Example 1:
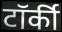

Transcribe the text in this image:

टॉर्की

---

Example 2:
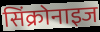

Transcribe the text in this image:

सिंक्रोनाइज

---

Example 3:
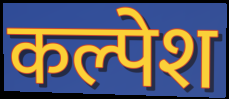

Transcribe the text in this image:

कल्पेश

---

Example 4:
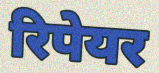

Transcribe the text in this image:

रिपेयर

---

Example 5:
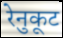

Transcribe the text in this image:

रेनुकूट